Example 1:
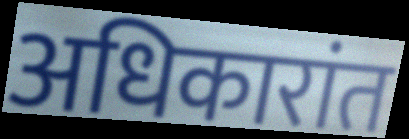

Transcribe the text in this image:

अधिकारांत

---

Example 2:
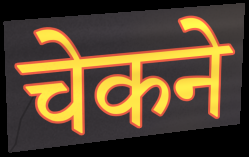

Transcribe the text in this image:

चेकने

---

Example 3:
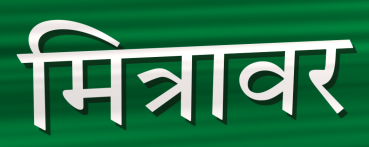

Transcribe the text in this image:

मित्रावर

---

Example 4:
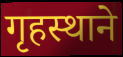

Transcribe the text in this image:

गृहस्थाने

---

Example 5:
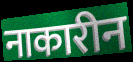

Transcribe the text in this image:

नाकारीन